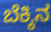
ಬೆಕ್ಕಿನ